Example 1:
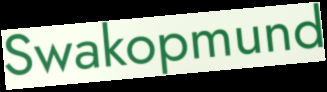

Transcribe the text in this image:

Swakopmund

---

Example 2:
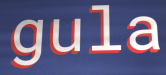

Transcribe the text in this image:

gula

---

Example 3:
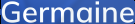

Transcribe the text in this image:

Germaine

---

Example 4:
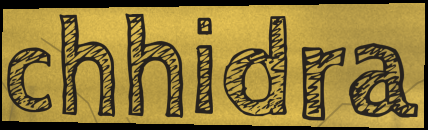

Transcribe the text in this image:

chhidra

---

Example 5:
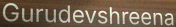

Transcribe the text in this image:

Gurudevshreena